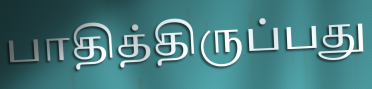
பாதித்திருப்பது